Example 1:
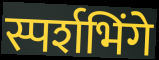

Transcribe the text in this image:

स्पर्शभिंगे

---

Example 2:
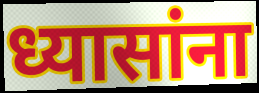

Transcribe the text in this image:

ध्यासांना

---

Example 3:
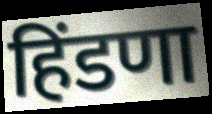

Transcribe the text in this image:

हिंडणा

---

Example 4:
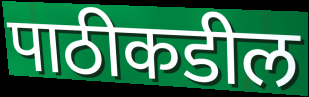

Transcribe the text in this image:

पाठीकडील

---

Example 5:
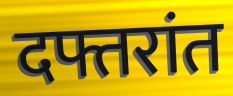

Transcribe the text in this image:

दफ्तरांत